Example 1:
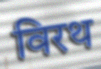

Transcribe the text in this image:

विरथ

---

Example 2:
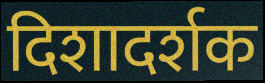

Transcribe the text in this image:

दिशादर्शक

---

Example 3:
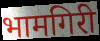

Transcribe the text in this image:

भामगिरी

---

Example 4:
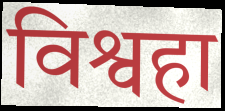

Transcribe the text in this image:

विश्वहा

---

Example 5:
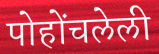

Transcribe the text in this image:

पोहोंचलेली